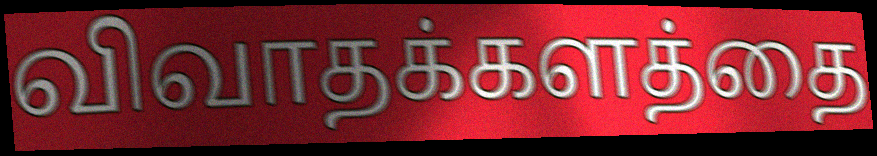
விவாதக்களத்தை